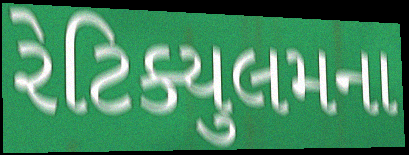
રેટિક્યુલમના